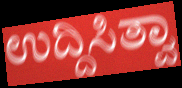
ಉದ್ದಿಸಿತ್ವಾ